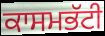
ਕਾਸਮਭੱਟੀ